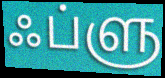
ஃப்ளு